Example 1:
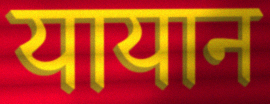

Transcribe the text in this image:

यायान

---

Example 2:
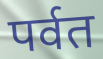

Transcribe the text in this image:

पर्वत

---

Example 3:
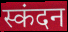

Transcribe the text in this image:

स्कंदन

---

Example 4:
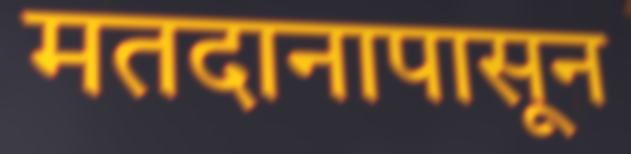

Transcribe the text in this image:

मतदानापासून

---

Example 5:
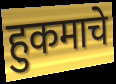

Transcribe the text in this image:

हुकमाचे